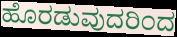
ಹೊರಡುವುದರಿಂದ